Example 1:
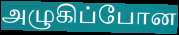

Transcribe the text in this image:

அழுகிப்போன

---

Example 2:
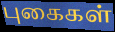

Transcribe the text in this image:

புகைகள்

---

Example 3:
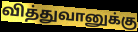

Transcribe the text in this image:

வித்துவானுக்கு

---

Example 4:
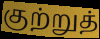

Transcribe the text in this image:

குற்றுத்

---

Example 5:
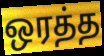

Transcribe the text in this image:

ஒரத்த